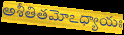
అశీతితమోఽధ్యాయః